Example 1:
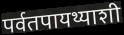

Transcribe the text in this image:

पर्वतपायथ्याशी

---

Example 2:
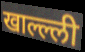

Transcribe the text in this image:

खाल्ल्ली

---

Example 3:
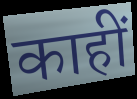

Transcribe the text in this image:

काहीं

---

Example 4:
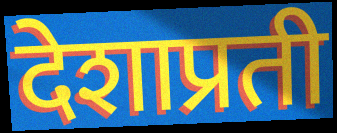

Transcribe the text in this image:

देशाप्रती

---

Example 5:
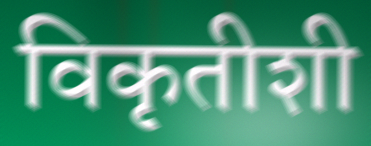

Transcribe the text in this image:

विकृतीशी